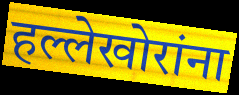
हल्लेखोरांना